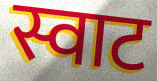
स्वाट